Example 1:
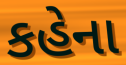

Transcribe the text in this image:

કહેના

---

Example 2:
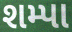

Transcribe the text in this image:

શમ્પા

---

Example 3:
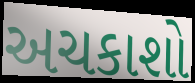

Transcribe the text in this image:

અચકાશો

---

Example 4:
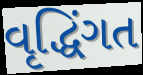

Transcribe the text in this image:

વૃદ્ધિંગત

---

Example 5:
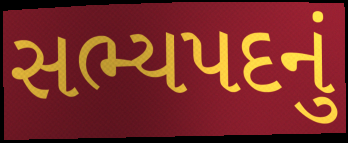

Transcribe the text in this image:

સભ્યપદનું